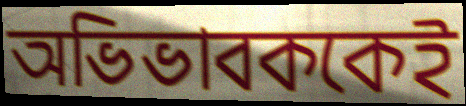
অভিভাবককেই